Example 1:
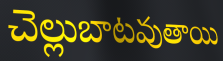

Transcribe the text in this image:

చెల్లుబాటవుతాయి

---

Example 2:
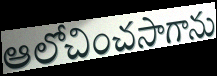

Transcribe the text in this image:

ఆలోచించసాగాను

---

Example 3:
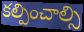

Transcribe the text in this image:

కల్పించాల్సి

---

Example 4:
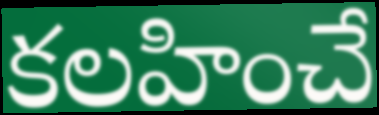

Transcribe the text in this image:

కలహించే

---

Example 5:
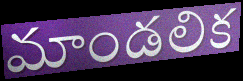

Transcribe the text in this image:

మాండలిక